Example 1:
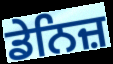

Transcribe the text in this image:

ਡੇਨਿਜ਼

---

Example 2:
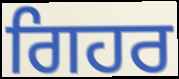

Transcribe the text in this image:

ਗਿਹਰ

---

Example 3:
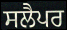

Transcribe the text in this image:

ਸਲੈਪਰ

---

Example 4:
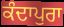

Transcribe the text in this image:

ਕੰਦਾਪੁਰਾ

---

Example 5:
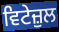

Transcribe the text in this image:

ਵਿਟੇਜ਼ੁਲ